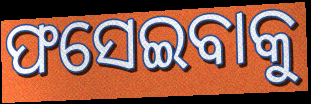
ଫସେଇବାକୁ